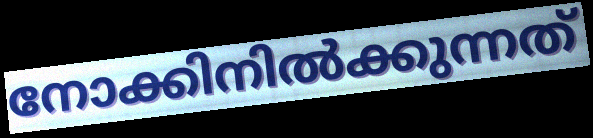
നോക്കിനിൽക്കുന്നത്